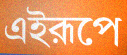
এইরূপে